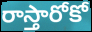
రాస్తారోకో